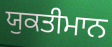
ਯੁਕਤੀਮਾਨ